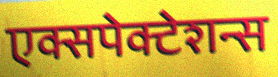
एक्सपेक्टेशन्स